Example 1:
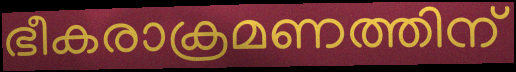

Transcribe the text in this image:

ഭീകരാക്രമണത്തിന്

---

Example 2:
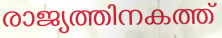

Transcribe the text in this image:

രാജ്യത്തിനകത്ത്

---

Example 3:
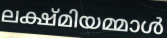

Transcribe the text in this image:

ലക്ഷ്മിയമ്മാൾ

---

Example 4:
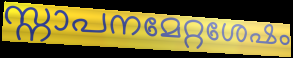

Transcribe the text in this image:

സ്നാപനമേറ്റശേഷം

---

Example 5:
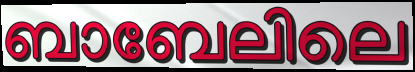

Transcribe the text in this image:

ബാബേലിലെ